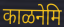
काळनेमि